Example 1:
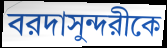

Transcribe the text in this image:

বরদাসুন্দরীকে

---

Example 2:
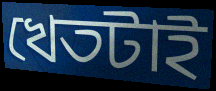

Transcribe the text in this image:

খেতটাই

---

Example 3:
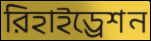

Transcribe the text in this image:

রিহাইড্রেশন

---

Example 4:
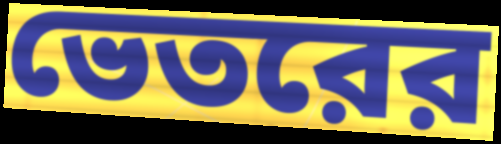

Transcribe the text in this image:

ভেতরের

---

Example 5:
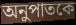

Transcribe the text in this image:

অনুপাতকে